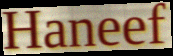
Haneef